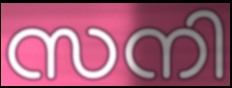
സനി